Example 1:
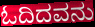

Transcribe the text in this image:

ಓದಿದವನು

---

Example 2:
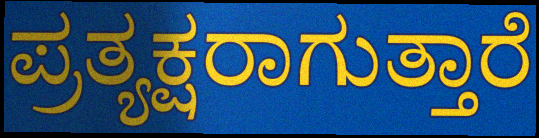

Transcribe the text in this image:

ಪ್ರತ್ಯಕ್ಷರಾಗುತ್ತಾರೆ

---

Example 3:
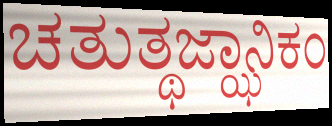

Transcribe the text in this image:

ಚತುತ್ಥಜ್ಝಾನಿಕಂ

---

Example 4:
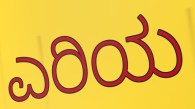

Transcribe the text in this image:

ಎರಿಯ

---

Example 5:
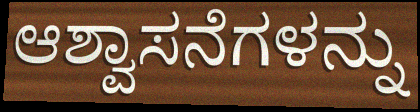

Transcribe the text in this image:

ಆಶ್ವಾಸನೆಗಳನ್ನು